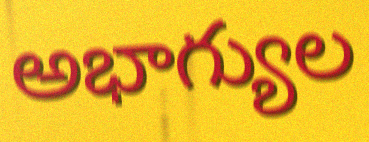
అభాగ్యుల